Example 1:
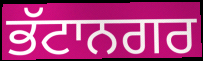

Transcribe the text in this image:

ਭੱਟਾਨਗਰ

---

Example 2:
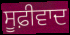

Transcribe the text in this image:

ਸੂਫ਼ੀਵਾਦ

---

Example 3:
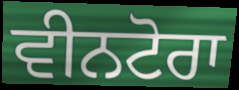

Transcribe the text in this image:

ਵੀਨਟੋਰਾ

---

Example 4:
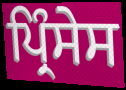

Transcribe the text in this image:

ਪ੍ਰਿੰਸੇਸ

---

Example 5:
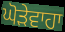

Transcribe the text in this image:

ਘੋੜੇਵਾਹਾ